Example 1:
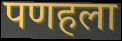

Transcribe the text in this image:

पणहला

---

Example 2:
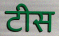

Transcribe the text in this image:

टीस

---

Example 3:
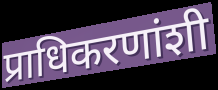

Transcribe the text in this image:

प्राधिकरणांशी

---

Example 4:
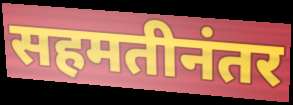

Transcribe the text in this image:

सहमतीनंतर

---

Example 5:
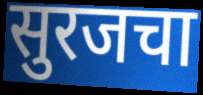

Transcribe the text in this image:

सुरजचा